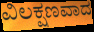
ವಿಲಕ್ಷಣವಾದ